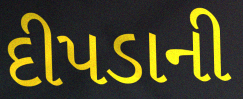
દીપડાની